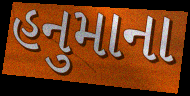
હનુમાના